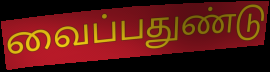
வைப்பதுண்டு